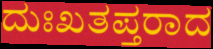
ದುಃಖತಪ್ತರಾದ